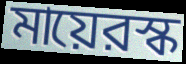
মায়েরস্ক